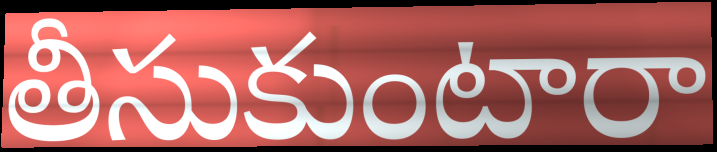
తీసుకుంటారా